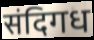
संदिगध